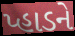
પ્હાડને